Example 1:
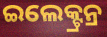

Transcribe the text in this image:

ଇଲେକ୍ଟ୍ରନ୍ର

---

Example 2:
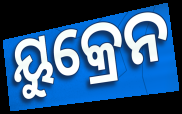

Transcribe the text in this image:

ୟୁକ୍ରେନ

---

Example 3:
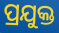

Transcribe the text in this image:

ପ୍ରଯୁକ୍ତ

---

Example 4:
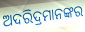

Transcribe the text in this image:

ଅଦରିଦ୍ରମାନଙ୍କର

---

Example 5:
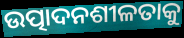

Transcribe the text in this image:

ଉତ୍ପାଦନଶୀଳତାକୁ